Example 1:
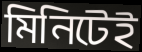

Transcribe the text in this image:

মিনিটেই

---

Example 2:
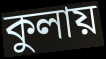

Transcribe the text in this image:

কুলায়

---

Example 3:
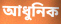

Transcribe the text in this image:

আধুনিক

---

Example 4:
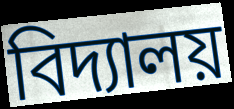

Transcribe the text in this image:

বিদ্যালয়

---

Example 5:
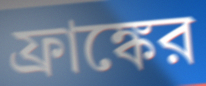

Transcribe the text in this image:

ফ্রাঙ্কের